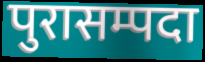
पुरासम्पदा